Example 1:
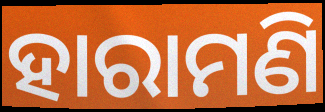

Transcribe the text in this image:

ହାରାମଣି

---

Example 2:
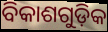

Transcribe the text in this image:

ବିକାଶଗୁଡ଼ିକ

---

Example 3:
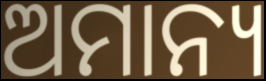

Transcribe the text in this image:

ଅମାନ୍ଯ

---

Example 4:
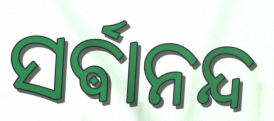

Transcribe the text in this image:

ସର୍ଵାନନ୍ଦ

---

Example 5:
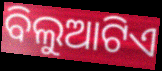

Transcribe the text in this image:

ବିଲୁଆଟିଏ